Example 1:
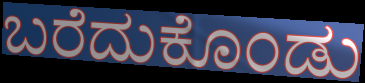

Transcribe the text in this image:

ಬರೆದುಕೊಂಡು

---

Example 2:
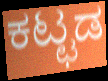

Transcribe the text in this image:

ಕಟ್ಟಡ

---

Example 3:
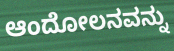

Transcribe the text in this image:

ಆಂದೋಲನವನ್ನು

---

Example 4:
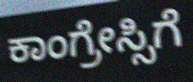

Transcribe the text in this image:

ಕಾಂಗ್ರೇಸ್ಸಿಗೆ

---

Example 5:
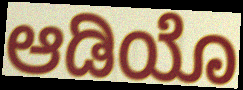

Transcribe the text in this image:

ಆಡಿಯೊ